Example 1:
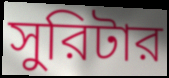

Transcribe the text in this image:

সুরিটার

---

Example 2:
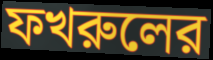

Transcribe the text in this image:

ফখরুলের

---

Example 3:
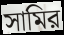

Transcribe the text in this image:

সামির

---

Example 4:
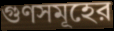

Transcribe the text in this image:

গুণসমূহের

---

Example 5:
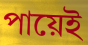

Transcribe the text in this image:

পায়েই